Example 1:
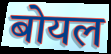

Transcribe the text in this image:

बोयल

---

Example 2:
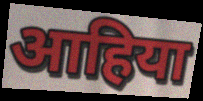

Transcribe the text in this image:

आहिया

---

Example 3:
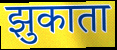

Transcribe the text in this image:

झुकाता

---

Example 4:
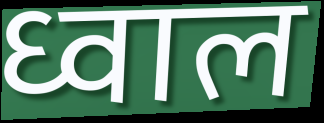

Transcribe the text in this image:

ध्वाल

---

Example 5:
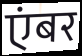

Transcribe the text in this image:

एंबर